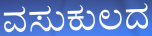
ವಸುಕುಲದ